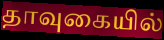
தாவுகையில்